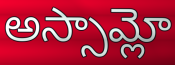
అస్సామ్లో